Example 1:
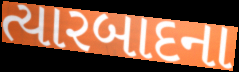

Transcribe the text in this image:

ત્યારબાદના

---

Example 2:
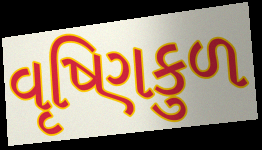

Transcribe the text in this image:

વૃષ્ણિકુળ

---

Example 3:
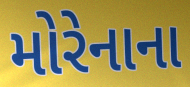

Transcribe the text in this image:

મોરેનાના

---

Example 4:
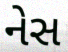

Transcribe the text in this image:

નેસ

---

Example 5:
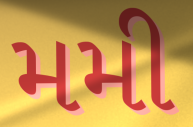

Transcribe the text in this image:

મમી